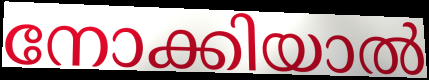
നോക്കിയാൽ